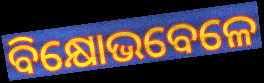
ବିକ୍ଷୋଭବେଳେ